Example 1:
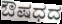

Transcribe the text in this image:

ಔಷಧದ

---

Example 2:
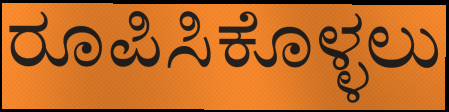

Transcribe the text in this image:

ರೂಪಿಸಿಕೊಳ್ಳಲು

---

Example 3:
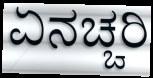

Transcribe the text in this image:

ಏನಚ್ಚರಿ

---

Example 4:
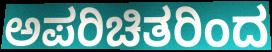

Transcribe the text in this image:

ಅಪರಿಚಿತರಿಂದ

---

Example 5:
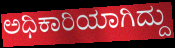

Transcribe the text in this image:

ಅಧಿಕಾರಿಯಾಗಿದ್ದು